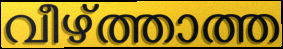
വീഴ്ത്താത്ത